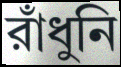
রাঁধুনি